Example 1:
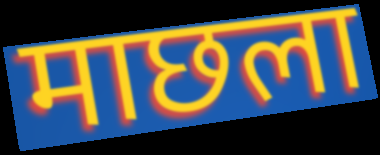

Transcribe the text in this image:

माछला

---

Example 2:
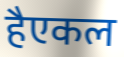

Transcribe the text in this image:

हैएकल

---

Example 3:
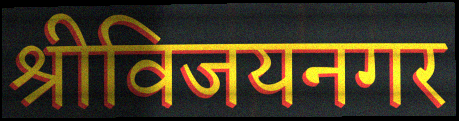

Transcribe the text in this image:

श्रीविजयनगर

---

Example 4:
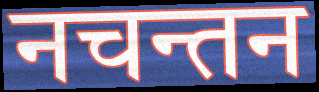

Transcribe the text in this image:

नचन्तन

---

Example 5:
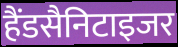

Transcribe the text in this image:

हैंडसैनिटाइजर